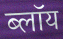
ब्लॉय